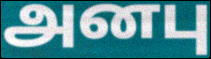
அனபு